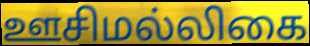
ஊசிமல்லிகை